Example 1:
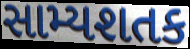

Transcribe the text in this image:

સામ્યશતક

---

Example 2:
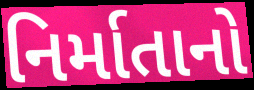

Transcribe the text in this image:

નિર્માતાનો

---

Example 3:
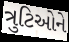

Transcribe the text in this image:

ત્રુટિઓને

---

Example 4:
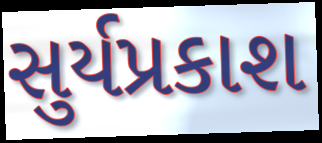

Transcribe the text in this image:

સુર્યપ્રકાશ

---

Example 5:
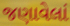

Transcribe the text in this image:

જણાવેલાં